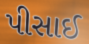
પીસાઈ